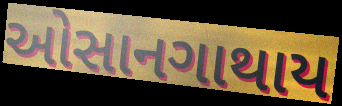
ઓસાનગાથાય